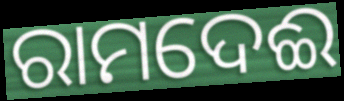
ରାମଦେଈ